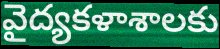
వైద్యకళాశాలకు